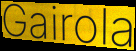
Gairola